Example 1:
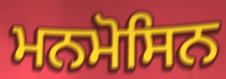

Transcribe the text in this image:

ਮਨਮੋਸਿਨ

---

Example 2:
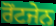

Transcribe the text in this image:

ਰੋਂਟਜੇਨ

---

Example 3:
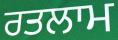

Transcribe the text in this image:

ਰਤਲਾਮ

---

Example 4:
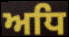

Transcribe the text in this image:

ਅਧਿ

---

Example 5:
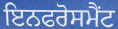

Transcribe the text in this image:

ਇਨਫਰੋਸਮੈਂਟ